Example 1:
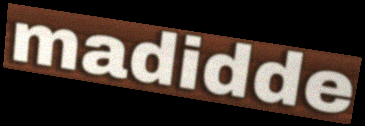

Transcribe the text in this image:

madidde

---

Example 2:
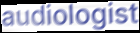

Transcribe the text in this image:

audiologist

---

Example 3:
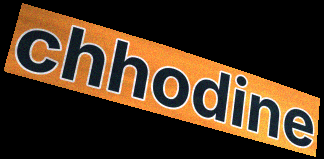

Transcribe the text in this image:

chhodine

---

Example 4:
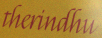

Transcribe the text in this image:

therindhu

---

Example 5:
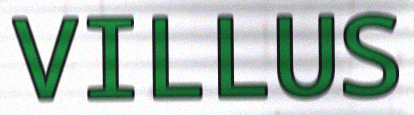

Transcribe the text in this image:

VILLUS